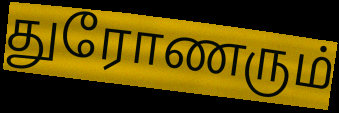
துரோணரும்